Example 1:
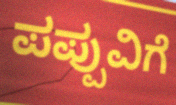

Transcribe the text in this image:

ಪಪ್ಪುವಿಗೆ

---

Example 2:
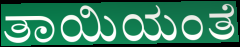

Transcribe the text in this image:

ತಾಯಿಯಂತೆ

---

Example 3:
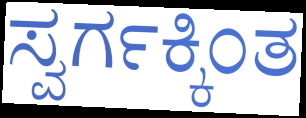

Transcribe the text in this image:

ಸ್ವರ್ಗಕ್ಕಿಂತ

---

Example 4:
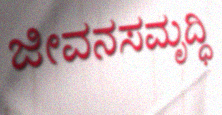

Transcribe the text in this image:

ಜೀವನಸಮೃದ್ಧಿ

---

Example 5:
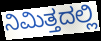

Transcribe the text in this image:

ನಿಮಿತ್ತದಲ್ಲಿ